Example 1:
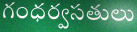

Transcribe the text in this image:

గంధర్వసతులు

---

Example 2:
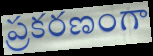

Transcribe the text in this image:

ప్రకరణంగా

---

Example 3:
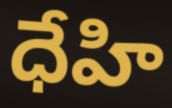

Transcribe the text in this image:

ధేహి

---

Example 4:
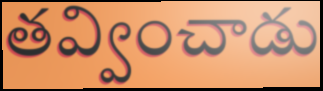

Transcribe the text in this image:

తవ్వించాడు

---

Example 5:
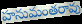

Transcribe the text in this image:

హనుమంతరావు